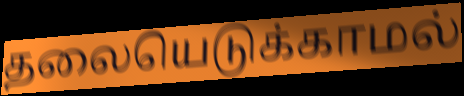
தலையெடுக்காமல்